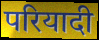
परियादी